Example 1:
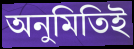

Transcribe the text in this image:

অনুমিতিই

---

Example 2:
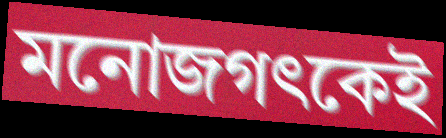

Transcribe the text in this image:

মনোজগৎকেই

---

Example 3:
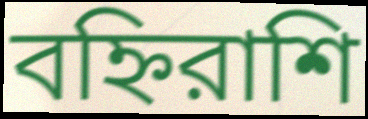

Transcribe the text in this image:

বহ্নিরাশি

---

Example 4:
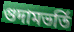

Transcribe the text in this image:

গুদামভর্তি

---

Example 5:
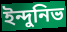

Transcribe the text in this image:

ইন্দুনিভ